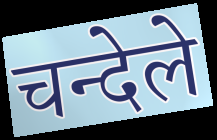
चन्देले